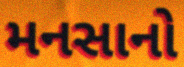
મનસાનો